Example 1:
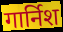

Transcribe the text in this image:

गार्निश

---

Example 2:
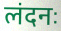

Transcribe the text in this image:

लंदनः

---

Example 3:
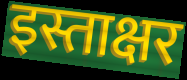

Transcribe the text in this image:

इस्ताक्षर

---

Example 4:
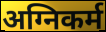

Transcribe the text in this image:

अग्निकर्म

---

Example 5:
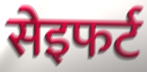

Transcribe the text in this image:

सेइफर्ट